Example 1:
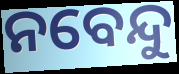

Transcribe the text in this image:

ନବେନ୍ଦୁ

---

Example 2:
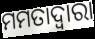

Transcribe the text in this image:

ମମତାଦ୍ୱାରା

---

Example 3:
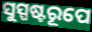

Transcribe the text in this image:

ସୁସ୍ପଷ୍ଟରୂପେ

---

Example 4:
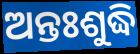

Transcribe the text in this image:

ଅନ୍ତଃଶୁଦ୍ଧି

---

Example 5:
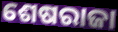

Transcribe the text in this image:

ଶେଷରାଜା